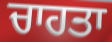
ਚਾਹਤਾ